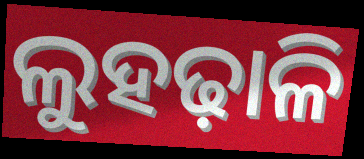
ଲୁହଢ଼ାଳି